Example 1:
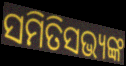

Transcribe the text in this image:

ସମିତିସଭ୍ୟଙ୍କ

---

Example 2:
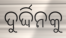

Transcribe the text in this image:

ଦୁର୍ଦ୍ଦିନକୁ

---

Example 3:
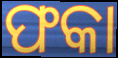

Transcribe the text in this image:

ଫକା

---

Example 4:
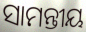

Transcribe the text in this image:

ସାମନ୍ତୀୟ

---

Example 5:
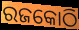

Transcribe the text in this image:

ରଜକୋଠି